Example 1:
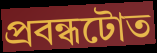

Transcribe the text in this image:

প্ৰবন্ধটোত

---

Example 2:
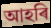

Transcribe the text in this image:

আহৰি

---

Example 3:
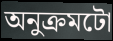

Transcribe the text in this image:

অনুক্ৰমটো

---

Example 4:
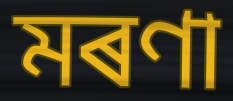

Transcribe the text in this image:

মৰণা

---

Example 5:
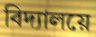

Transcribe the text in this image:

বিদ্যালয়ে